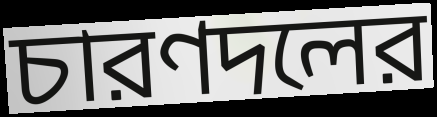
চারণদলের